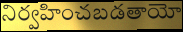
నిర్వహించబడతాయో